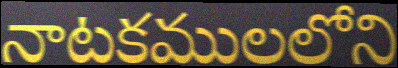
నాటకములలోని